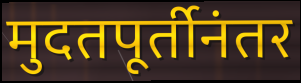
मुदतपूर्तीनंतर